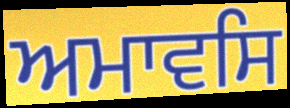
ਅਮਾਵਸਿ